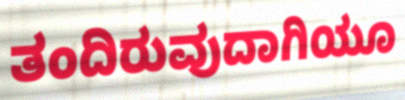
ತಂದಿರುವುದಾಗಿಯೂ